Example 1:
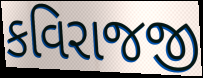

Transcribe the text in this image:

કવિરાજજી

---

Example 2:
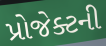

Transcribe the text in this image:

પ્રોજેક્ટની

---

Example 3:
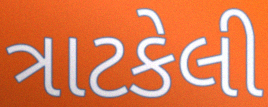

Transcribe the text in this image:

ત્રાટકેલી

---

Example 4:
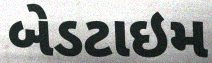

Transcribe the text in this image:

બેડટાઇમ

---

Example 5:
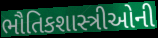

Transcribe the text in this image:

ભૌતિકશાસ્ત્રીઓની